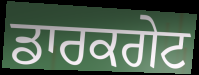
ਡਾਰਕਗੇਟ